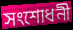
সংশোধনী